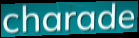
charade